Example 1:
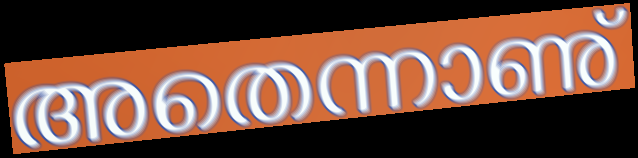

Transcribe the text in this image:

അതെന്നാണു്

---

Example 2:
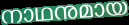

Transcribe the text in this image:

നാഥനുമായ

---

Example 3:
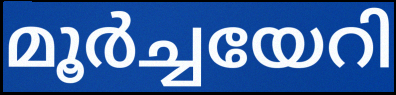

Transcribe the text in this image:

മൂർച്ചയേറി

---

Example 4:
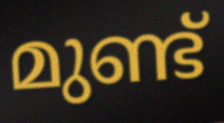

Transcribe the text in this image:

മുണ്ട്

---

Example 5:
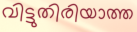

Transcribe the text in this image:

വിട്ടുതിരിയാത്ത